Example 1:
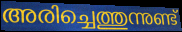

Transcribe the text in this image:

അരിച്ചെത്തുന്നുണ്ട്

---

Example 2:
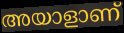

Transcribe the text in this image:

അയാളാണ്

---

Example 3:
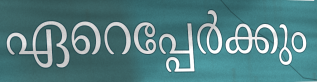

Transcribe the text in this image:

ഏറെപ്പേർക്കും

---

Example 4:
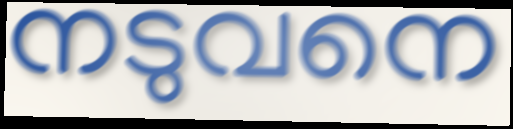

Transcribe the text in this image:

നടുവനെ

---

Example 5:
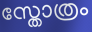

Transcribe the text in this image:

സ്തോത്രം